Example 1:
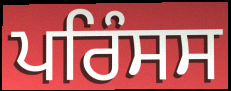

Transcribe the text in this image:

ਪਰਿੰਸਸ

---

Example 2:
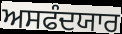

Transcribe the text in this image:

ਅਸਫੰਦਯਾਰ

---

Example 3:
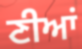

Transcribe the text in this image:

ਣੀਆਂ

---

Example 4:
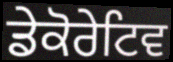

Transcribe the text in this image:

ਡੇਕੋਰੇਟਿਵ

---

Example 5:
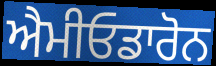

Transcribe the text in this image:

ਐਮੀਓਡਾਰੋਨ